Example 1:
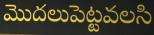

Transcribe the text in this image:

మొదలుపెట్టవలసి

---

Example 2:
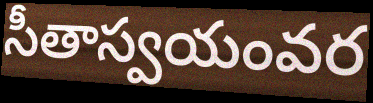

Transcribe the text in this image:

సీతాస్వయంవర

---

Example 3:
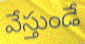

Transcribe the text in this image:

వేస్తుండే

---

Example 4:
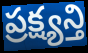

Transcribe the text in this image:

ప్రక్ష్యన్తి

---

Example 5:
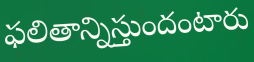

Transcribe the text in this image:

ఫలితాన్నిస్తుందంటారు